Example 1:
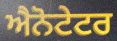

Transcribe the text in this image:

ਐਨੋਟੇਟਰ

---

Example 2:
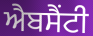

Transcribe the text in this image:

ਐਬਸੈਂਟੀ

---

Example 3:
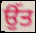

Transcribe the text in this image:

ਉੱਤ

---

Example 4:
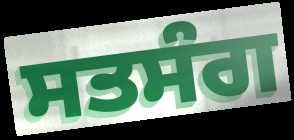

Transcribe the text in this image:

ਸਤਸੰਗ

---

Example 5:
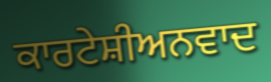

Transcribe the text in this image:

ਕਾਰਟੇਸ਼ੀਅਨਵਾਦ